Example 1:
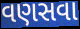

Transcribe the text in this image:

વણસવા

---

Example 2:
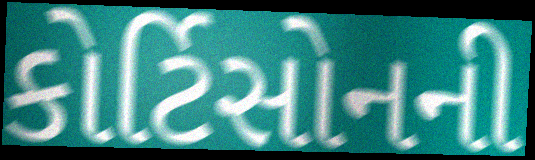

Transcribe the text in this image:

કોર્ટિસોનની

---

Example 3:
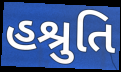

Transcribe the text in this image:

હશ્રુતિ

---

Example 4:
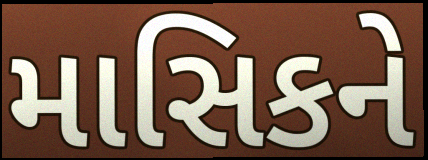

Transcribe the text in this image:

માસિકને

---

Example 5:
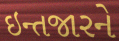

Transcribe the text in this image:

ઇન્તજારને